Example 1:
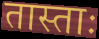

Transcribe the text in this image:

तास्ताः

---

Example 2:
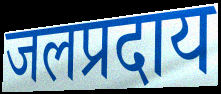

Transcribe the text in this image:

जलप्रदाय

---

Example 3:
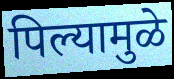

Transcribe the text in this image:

पिल्यामुळे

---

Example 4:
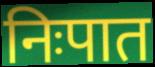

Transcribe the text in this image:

निःपात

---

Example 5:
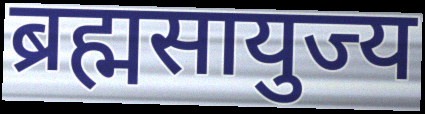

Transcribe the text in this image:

ब्रह्मसायुज्य